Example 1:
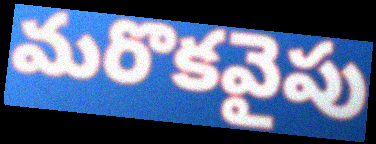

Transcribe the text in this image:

మరొకవైపు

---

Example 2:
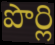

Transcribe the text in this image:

పొర్లి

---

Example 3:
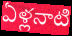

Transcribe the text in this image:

ఏళ్లనాటి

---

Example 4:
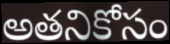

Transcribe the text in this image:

అతనికోసం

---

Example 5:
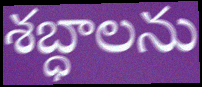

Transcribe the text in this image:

శబ్ధాలను